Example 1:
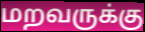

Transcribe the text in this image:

மறவருக்கு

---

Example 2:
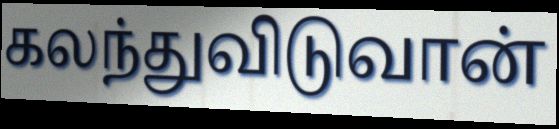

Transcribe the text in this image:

கலந்துவிடுவான்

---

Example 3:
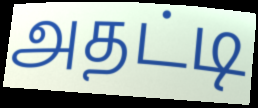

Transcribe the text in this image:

அதட்டி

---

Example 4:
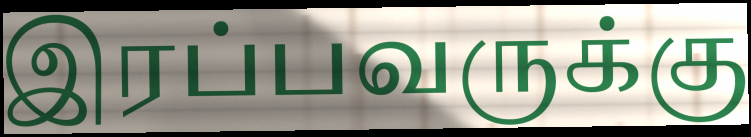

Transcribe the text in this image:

இரப்பவருக்கு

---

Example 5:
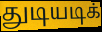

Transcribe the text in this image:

துடியடிக்